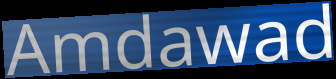
Amdawad